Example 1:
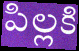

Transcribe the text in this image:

పిల్లకి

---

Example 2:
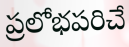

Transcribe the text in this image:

ప్రలోభపరిచే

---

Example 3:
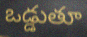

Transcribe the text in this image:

ఒడ్డుతూ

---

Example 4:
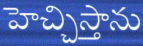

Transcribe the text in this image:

హెచ్చిస్తాను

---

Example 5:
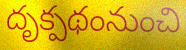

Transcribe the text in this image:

దృక్పథంనుంచి